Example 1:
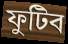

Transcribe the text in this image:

ফুটিব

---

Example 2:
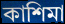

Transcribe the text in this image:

কাশিমা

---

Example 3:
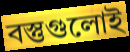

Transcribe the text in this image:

বস্তুগুলোই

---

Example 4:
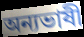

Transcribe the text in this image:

অন্যভাষী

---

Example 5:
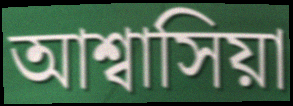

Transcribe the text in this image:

আশ্বাসিয়া